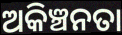
ଅକିଞ୍ଚନତା